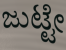
ಜುಟ್ಟೇ